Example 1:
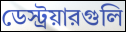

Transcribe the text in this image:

ডেস্ট্রয়ারগুলি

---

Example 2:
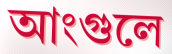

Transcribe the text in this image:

আংগুলে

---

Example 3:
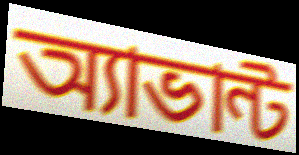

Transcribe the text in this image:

অ্যাভান্ট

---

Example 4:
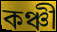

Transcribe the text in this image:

কঞ্চী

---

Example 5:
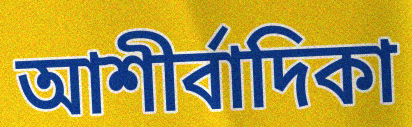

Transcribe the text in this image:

আশীর্বাদিকা